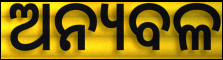
ଅନ୍ୟବଳ